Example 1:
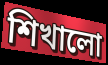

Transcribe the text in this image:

শিখালো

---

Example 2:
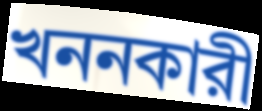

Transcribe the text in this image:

খননকারী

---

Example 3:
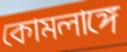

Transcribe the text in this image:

কোমলাঙ্গে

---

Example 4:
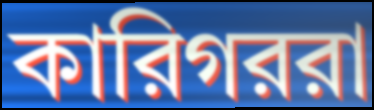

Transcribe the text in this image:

কারিগররা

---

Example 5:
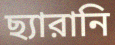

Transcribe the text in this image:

ছ্যারানি